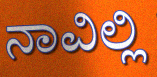
ನಾವಿಲ್ಲಿ